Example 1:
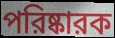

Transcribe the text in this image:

পরিষ্কারক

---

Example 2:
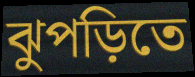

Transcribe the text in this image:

ঝুপড়িতে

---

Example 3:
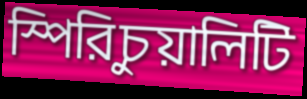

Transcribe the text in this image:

স্পিরিচুয়ালিটি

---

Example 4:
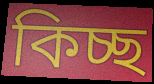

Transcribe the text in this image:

কিচ্ছ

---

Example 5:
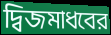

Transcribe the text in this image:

দ্বিজমাধবের